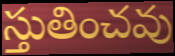
స్తుతించవు